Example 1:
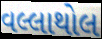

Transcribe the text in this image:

વલ્લાથોલ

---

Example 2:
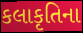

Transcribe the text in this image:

કલાકૃતિના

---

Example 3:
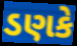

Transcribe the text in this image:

ડણકે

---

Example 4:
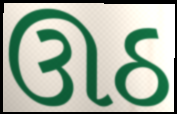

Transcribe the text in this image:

ઊઠ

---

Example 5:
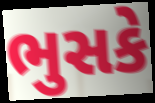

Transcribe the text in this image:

ભુસકે